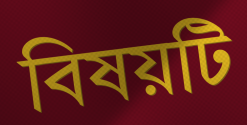
বিষয়টি